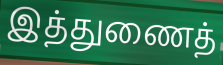
இத்துணைத்